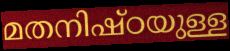
മതനിഷ്ഠയുള്ള